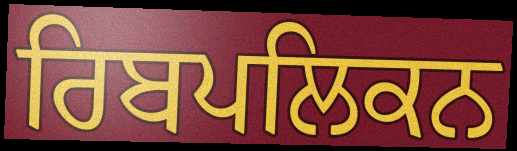
ਰਿਬਪਲਿਕਨ